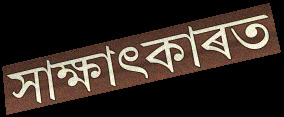
সাক্ষাৎকাৰত